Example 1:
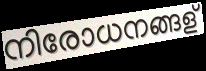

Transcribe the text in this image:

നിരോധനങ്ങള്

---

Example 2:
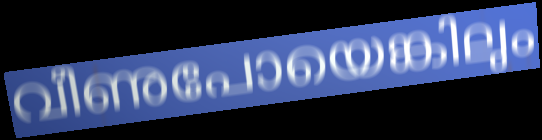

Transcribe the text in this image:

വീണുപോയെങ്കിലും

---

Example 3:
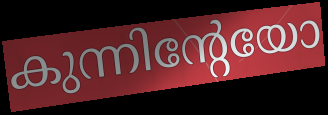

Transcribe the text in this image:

കുന്നിന്റേയോ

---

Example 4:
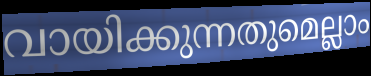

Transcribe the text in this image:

വായിക്കുന്നതുമെല്ലാം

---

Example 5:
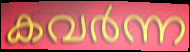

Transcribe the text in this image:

കവർന്ന